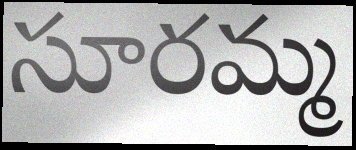
సూరమ్మ